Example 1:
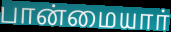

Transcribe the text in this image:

பான்மையார்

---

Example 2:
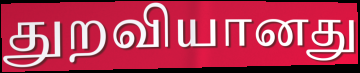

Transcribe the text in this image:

துறவியானது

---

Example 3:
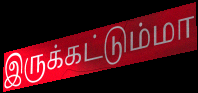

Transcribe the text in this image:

இருக்கட்டும்மா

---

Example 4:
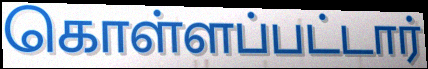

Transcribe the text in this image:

கொள்ளப்பட்டார்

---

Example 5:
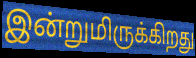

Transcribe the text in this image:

இன்றுமிருக்கிறது